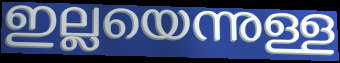
ഇല്ലയെന്നുള്ള